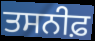
ਤਸਨੀਫ਼